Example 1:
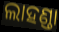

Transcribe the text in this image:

ଲାହଣ୍ଡା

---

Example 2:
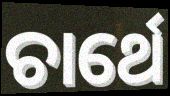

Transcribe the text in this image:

ଚାର୍ଥେ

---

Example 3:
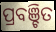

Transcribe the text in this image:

ପ୍ରବଞ୍ଚିତ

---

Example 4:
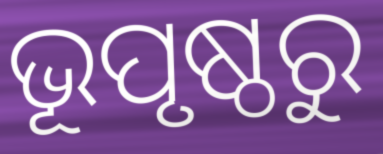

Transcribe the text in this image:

ଭୂପୃଷ୍ଠରୁ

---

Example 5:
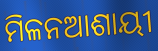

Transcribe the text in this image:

ମିଳନଆଶାୟୀ